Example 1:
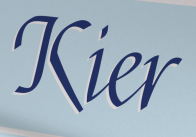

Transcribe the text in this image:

Kier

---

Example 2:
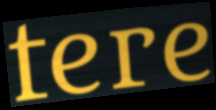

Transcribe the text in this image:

tere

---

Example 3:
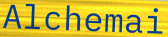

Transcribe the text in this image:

Alchemai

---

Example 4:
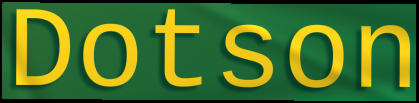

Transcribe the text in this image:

Dotson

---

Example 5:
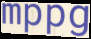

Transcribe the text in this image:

mppg